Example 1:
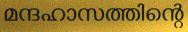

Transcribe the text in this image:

മന്ദഹാസത്തിന്റെ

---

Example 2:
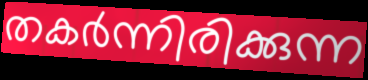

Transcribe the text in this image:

തകർന്നിരിക്കുന്ന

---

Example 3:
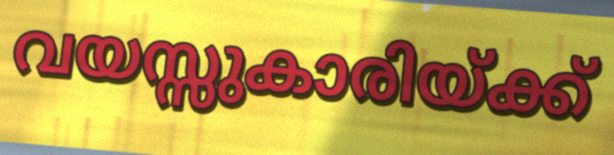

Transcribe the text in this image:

വയസ്സുകാരിയ്ക്ക്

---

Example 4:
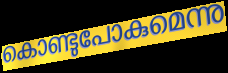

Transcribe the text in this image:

കൊണ്ടുപോകുമെന്നു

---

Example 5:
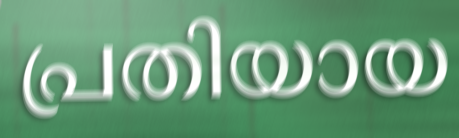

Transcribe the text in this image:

പ്രതിയായ